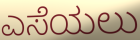
ಎಸೆಯಲು